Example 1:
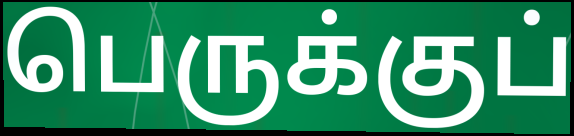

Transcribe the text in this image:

பெருக்குப்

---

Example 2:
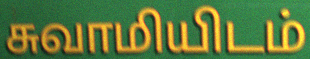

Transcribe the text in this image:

சுவாமியிடம்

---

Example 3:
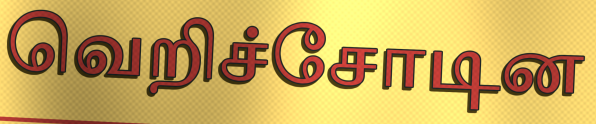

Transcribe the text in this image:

வெறிச்சோடின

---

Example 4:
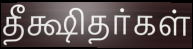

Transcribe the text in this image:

தீக்ஷிதர்கள்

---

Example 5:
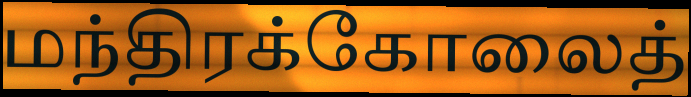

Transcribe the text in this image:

மந்திரக்கோலைத்